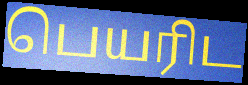
பெயரிட